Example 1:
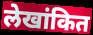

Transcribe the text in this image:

लेखांकित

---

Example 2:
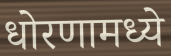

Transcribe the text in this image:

धोरणामध्ये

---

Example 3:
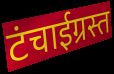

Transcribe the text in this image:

टंचाईग्रस्त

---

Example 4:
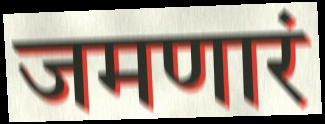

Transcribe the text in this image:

जमणारं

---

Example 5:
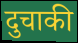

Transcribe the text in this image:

दुचाकी